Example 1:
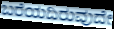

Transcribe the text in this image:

ಬರೆಯದಿರುವುದೇ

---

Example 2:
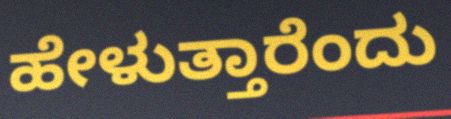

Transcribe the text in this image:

ಹೇಳುತ್ತಾರೆಂದು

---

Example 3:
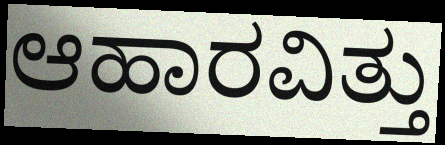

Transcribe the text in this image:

ಆಹಾರವಿತ್ತು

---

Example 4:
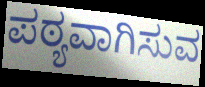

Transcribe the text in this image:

ಪಠ್ಯವಾಗಿಸುವ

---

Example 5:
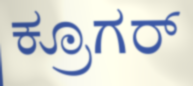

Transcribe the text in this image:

ಕ್ರೂಗರ್